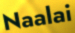
Naalai